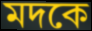
মদকে